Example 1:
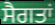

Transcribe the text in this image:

ਸੈਗਤਾਂ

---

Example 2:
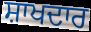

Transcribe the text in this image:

ਸ਼ਾਖਦਾਰ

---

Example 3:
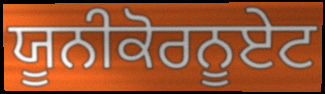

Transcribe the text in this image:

ਯੂਨੀਕੋਰਨੂਏਟ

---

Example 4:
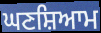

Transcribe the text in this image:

ਘਣਸ਼ਿਆਮ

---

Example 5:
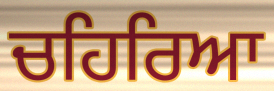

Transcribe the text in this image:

ਚਹਿਰਿਆ